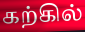
கற்கில்